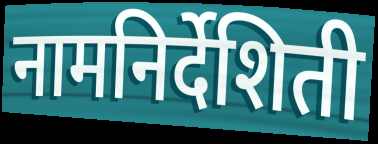
नामनिर्देशिती